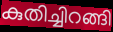
കുതിച്ചിറങ്ങി